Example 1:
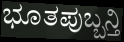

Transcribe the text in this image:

ಭೂತಪುಬ್ಬನ್ತಿ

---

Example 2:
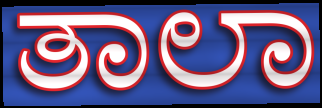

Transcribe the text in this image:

ತಾಲಾ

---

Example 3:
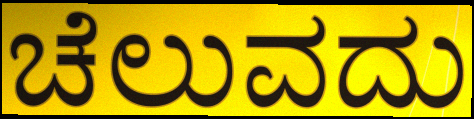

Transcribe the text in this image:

ಚೆಲುವದು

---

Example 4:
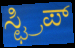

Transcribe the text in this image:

ಸ್ಟ್ರಿಪ್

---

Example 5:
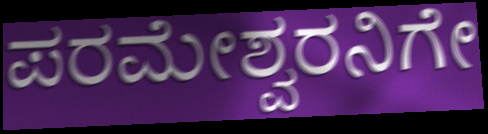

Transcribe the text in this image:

ಪರಮೇಶ್ವರನಿಗೇ